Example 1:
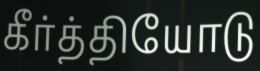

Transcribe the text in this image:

கீர்த்தியோடு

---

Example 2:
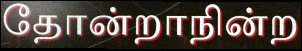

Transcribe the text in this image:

தோன்றாநின்ற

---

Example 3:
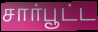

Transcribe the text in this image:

சார்பூட்ட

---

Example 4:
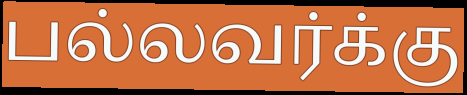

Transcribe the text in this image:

பல்லவர்க்கு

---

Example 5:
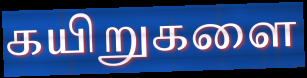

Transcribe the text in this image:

கயிறுகளை